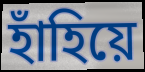
হাঁহিয়ে